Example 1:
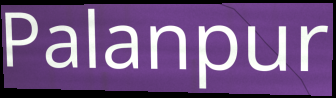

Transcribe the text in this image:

Palanpur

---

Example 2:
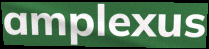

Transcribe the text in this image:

amplexus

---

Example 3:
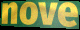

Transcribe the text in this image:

nove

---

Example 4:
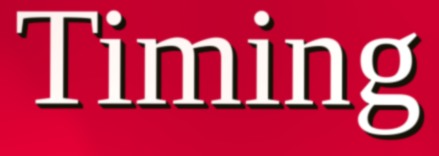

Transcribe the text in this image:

Timing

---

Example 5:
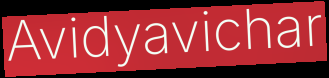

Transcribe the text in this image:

Avidyavichar